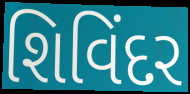
શિવિંદર